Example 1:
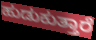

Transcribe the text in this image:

ಹುಡುಕುತ್ತಾರೆ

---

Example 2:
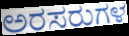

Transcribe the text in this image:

ಅರಸರುಗಳ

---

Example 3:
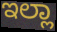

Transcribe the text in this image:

ಇಲ್ಲಾ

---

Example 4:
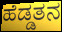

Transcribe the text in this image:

ಹೆಡ್ಡತನ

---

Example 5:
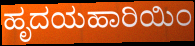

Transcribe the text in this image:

ಹೃದಯಹಾರಿಯಿಂ